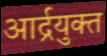
आर्द्रयुक्त